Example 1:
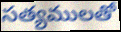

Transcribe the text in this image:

సత్యములతో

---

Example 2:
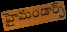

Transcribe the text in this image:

హైమండార్ఫ్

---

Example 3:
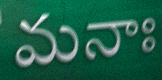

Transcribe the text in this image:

మనాః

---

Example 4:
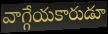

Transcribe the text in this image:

వాగ్గేయకారుడూ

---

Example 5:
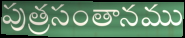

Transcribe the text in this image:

పుత్రసంతానము